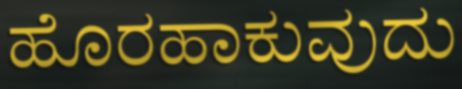
ಹೊರಹಾಕುವುದು